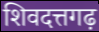
शिवदत्तगढ़